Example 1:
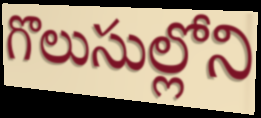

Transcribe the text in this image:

గొలుసుల్లోని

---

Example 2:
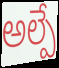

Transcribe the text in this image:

అల్పే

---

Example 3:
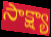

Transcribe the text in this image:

సాక్ష్యా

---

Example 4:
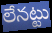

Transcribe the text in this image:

లేనట్టు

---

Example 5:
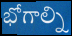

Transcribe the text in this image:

భోగాల్ని